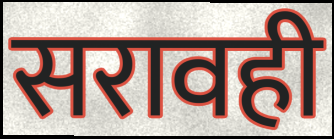
सरावही